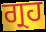
ਗ੍ਰਹ